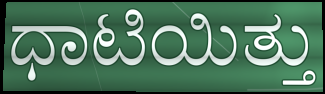
ಧಾಟಿಯಿತ್ತು